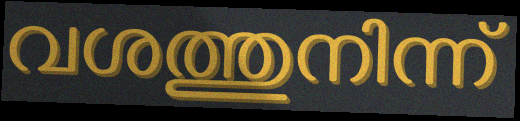
വശത്തുനിന്ന്